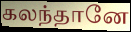
கலந்தானே